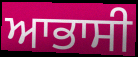
ਆਭਾਸੀ